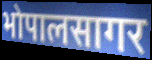
भोपालसागर